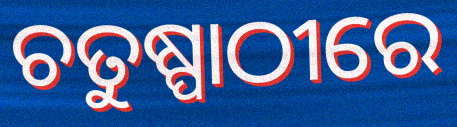
ଚତୁଷ୍ପାଠୀରେ